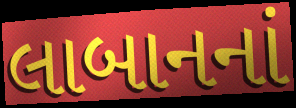
લાબાનનાં